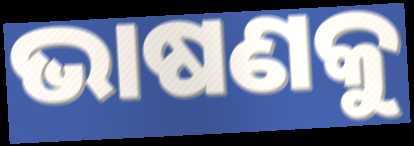
ଭାଷଣକୁ